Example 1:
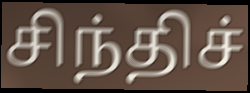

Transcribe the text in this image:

சிந்திச்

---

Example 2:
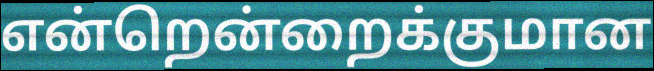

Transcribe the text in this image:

என்றென்றைக்குமான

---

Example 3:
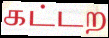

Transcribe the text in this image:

கட்டற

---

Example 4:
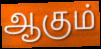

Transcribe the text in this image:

ஆகும்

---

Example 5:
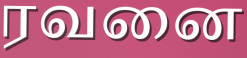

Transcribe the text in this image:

ரவனை